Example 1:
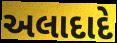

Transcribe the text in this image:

અલાદાદે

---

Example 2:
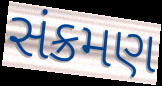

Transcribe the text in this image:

સંક્રમણ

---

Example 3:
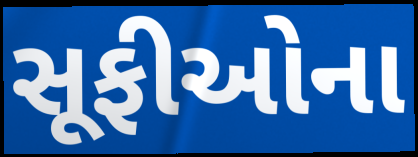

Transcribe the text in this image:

સૂફીઓના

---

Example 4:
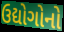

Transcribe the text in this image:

ઉદ્યોગોનો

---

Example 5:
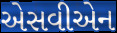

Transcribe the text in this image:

એસવીએન